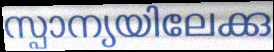
സ്പാന്യയിലേക്കു